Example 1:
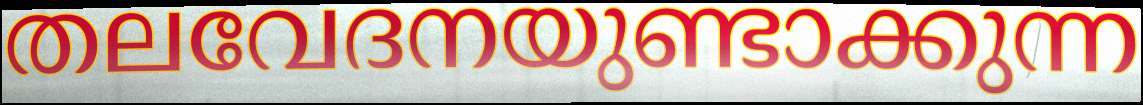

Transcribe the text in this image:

തലവേദനയുണ്ടാക്കുന്ന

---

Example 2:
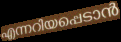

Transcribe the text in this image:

എന്നറിയപ്പെടാൻ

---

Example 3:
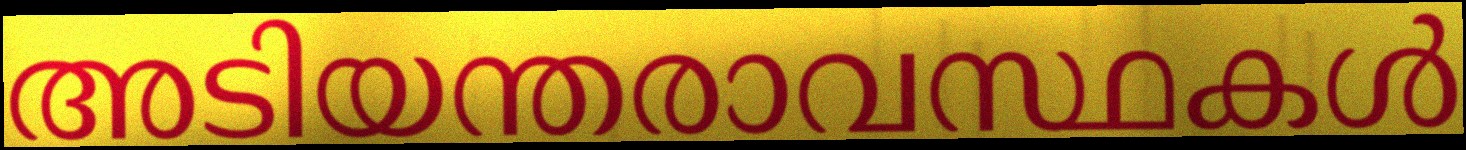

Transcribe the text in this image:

അടിയന്തരാവസ്ഥകൾ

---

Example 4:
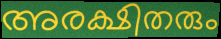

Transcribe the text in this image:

അരക്ഷിതരും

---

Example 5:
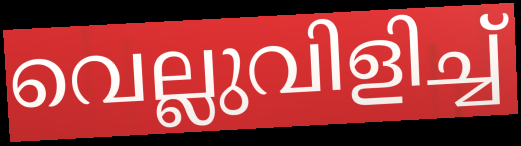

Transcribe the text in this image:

വെല്ലുവിളിച്ച്